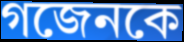
গজেনকে